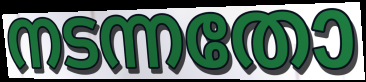
നടന്നതോ